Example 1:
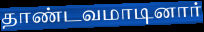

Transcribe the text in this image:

தாண்டவமாடினார்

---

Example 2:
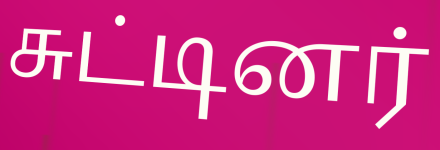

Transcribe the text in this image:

சுட்டினர்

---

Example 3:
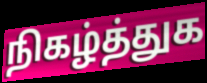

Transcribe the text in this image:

நிகழ்த்துக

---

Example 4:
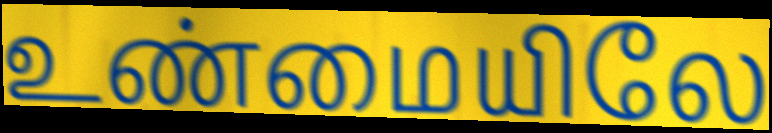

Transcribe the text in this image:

உண்மையிலே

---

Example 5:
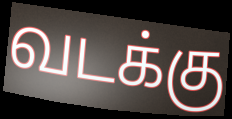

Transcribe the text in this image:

வடக்கு